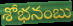
శోభనంబు